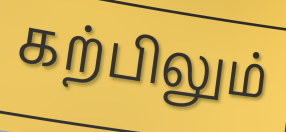
கற்பிலும்